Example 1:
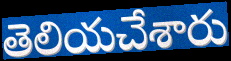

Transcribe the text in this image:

తెలియచేశారు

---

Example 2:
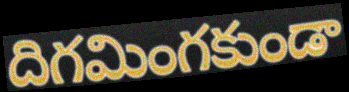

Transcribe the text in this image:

దిగమింగకుండా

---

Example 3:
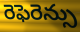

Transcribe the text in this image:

రెఫెరెన్సు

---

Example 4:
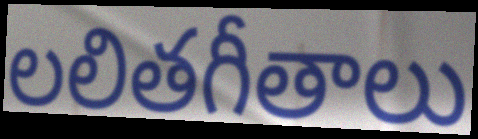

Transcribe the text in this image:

లలితగీతాలు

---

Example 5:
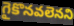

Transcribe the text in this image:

గైకొనవలెనని